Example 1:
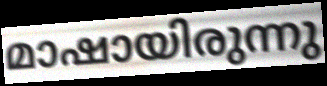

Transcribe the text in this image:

മാഷായിരുന്നു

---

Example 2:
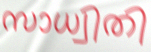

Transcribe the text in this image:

സാധ്വിതി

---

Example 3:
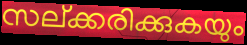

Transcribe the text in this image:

സല്ക്കരിക്കുകയും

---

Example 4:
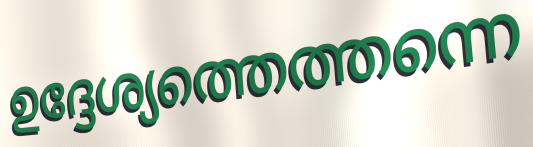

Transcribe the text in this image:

ഉദ്ദേശ്യത്തെത്തന്നെ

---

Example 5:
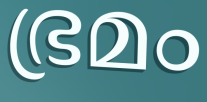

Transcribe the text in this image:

ഭ്രമം